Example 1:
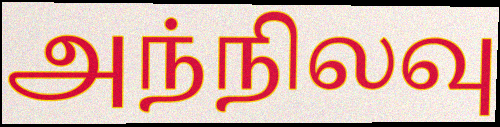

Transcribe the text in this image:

அந்நிலவு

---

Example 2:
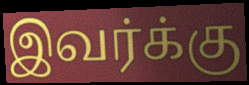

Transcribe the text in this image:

இவர்க்கு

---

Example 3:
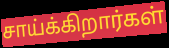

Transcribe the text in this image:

சாய்க்கிறார்கள்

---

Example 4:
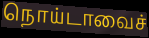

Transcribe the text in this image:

நொய்டாவைச்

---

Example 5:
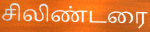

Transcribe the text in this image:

சிலிண்டரை